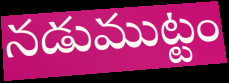
నడుముట్టం